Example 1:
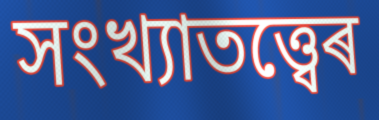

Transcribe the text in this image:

সংখ্যাতত্ত্বেৰ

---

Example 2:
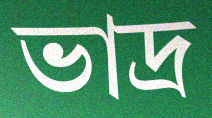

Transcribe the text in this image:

ভাদ্ৰ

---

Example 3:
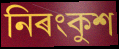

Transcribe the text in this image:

নিৰংকুশ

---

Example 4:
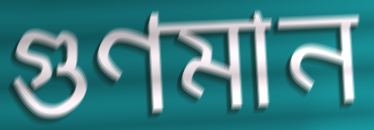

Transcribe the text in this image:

গুণমান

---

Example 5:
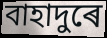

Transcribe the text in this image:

বাহাদুৰে